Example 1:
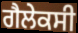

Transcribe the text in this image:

ਗੈਲੇਕਸੀ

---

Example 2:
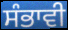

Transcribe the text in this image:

ਸੰਭਾਵੀ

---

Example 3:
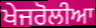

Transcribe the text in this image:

ਖੇਜਰੋਲੀਆ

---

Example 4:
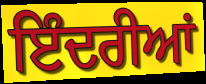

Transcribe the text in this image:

ਇੰਦਰੀਆਂ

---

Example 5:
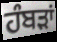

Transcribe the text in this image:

ਹੰਬੜਾਂ